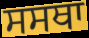
ਸਸਥਾ